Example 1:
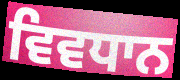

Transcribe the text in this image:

ਵਿਵਧਾਨ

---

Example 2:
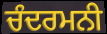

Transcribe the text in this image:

ਚੰਦਰਮਨੀ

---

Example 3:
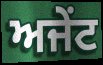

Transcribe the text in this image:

ਅਜੇਂਟ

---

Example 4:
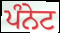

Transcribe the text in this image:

ਪੰਨੇਟ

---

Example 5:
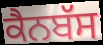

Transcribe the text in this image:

ਕੈਨਬੱਸ